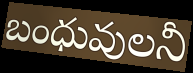
బంధువులనీ